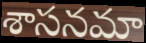
శాసనమా